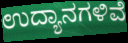
ಉದ್ಯಾನಗಳಿವೆ